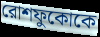
রোশফুকোকে